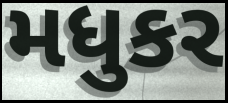
મધુકર